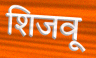
शिजवू